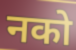
नको